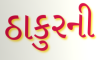
ઠાકુરની